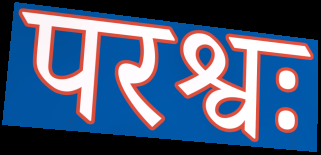
परश्वः